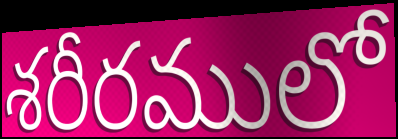
శరీరములో